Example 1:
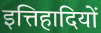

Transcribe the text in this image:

इत्तिहादियों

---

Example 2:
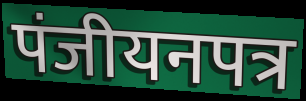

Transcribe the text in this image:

पंजीयनपत्र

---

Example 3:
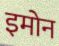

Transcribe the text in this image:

इमोन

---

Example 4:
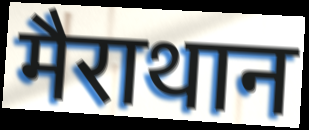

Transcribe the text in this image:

मैराथान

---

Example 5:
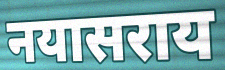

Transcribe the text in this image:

नयासराय